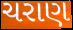
ચરાણ